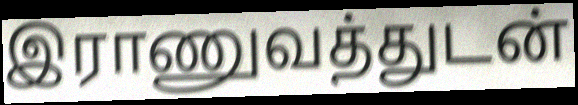
இராணுவத்துடன்